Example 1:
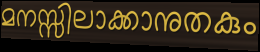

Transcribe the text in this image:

മനസ്സിലാക്കാനുതകും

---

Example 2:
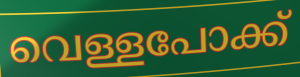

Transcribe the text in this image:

വെള്ളപോക്ക്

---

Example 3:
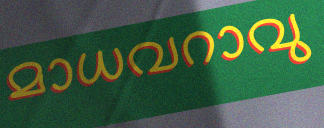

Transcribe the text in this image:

മാധവറാവു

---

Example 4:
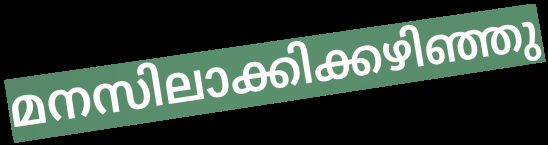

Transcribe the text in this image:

മനസിലാക്കിക്കഴിഞ്ഞു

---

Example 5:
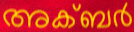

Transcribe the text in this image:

അക്ബർ